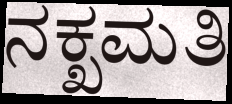
ನಕ್ಖಮತಿ